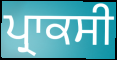
ਪ੍ਰਾਕਸੀ